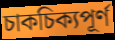
চাকচিক্যপূর্ণ